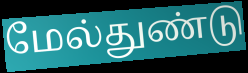
மேல்துண்டு